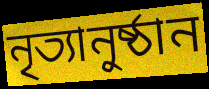
নৃত্যানুষ্ঠান